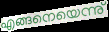
എങ്ങനെയെന്നു്